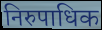
निरुपाधिक